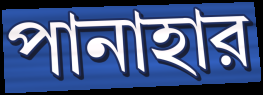
পানাহার